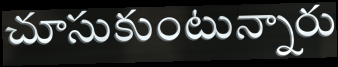
చూసుకుంటున్నారు